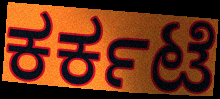
ಕರ್ಕಟೆ